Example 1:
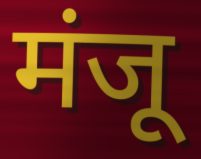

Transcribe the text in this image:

मंजू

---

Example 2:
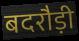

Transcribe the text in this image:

बदरौड़ी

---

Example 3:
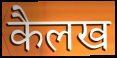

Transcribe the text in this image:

कैलख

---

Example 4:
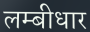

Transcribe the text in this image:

लम्बीधार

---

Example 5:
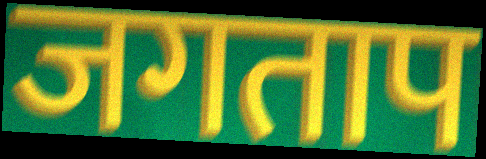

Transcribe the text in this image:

जगताप